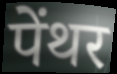
पेंथर